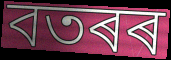
বতৰৰ